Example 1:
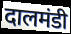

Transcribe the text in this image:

दालमंडी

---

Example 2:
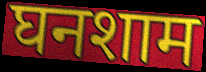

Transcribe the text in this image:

घनशाम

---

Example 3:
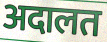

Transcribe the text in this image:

अदालत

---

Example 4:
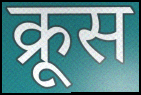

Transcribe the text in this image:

क्रूस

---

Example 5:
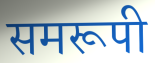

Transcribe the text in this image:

समरूपी